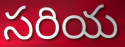
సరియ